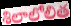
శిలాలోలిత